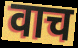
वाच